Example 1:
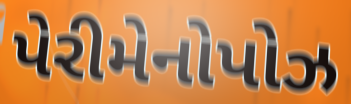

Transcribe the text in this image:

પેરીમેનોપોઝ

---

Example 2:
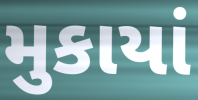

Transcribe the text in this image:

મુકાયાં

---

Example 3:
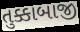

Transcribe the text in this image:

તુક્કાબાજી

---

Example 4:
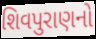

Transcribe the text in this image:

શિવપુરાણનો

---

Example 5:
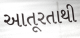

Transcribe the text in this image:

આતૂરતાથી